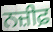
ਨਜ਼ੀਫ਼